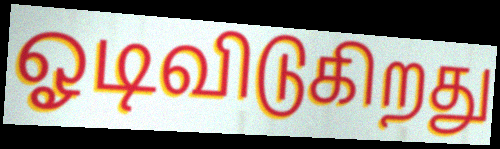
ஓடிவிடுகிறது